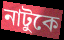
নাটুকে